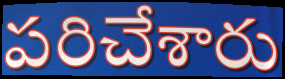
పరిచేశారు